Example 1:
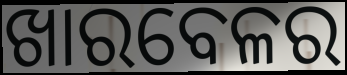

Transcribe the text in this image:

ଖାରବେଳର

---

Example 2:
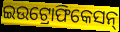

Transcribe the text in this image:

ଇଉଟ୍ରୋଫିକେସନ୍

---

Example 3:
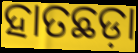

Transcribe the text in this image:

ହାତଛଡ଼ା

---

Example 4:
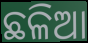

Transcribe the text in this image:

ଛଳିଆ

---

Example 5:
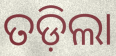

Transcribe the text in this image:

ତଡ଼ିଲା